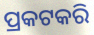
ପ୍ରକଟକରି